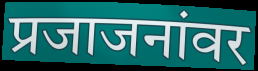
प्रजाजनांवर